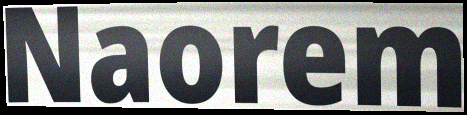
Naorem